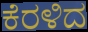
ಕೆರಳಿದ